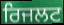
ਰਿਜਲਟ